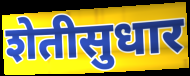
शेतीसुधार